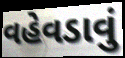
વહેવડાવું